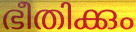
ഭീതിക്കും